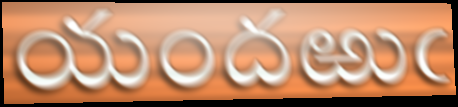
యందఱుఁ